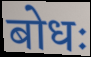
बोधः